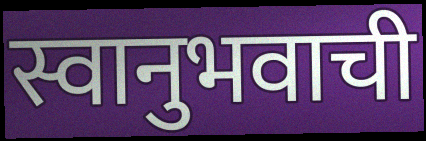
स्वानुभवाची